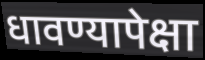
धावण्यापेक्षा